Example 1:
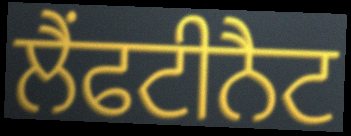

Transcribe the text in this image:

ਲੈਂਫਟੀਨੈਟ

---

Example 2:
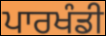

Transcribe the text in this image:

ਪਾਰਖੰਡੀ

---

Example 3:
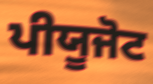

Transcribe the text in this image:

ਪੀਯੂਜੋਟ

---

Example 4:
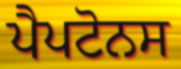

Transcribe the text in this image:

ਪੈਪਟੋਨਸ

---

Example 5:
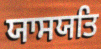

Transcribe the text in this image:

ਯਾਸਯਤਿ